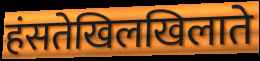
हंसतेखिलखिलाते